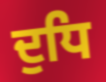
ਦੁਧਿ